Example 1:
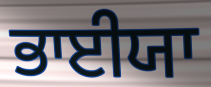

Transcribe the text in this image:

ਭਾਈਯਾ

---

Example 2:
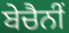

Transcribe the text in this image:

ਬੇਚੈਨੀਂ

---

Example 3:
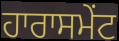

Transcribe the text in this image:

ਹਾਰਾਸਮੇਂਟ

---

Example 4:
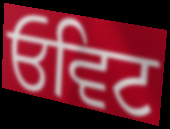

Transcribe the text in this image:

ਓਵਿਟ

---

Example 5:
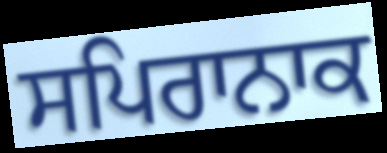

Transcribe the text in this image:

ਸਪਿਰਾਨਾਕ